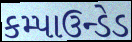
કમ્પાઉન્ડેડ